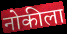
नोकीला